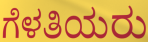
ಗೆಳತಿಯರು